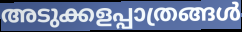
അടുക്കളപ്പാത്രങ്ങൾ